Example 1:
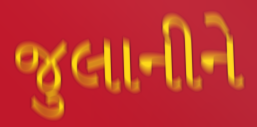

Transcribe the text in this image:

જુલાનીને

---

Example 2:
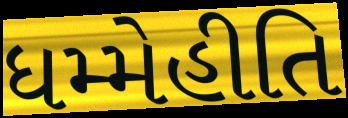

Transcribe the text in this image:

ધમ્મેહીતિ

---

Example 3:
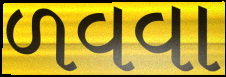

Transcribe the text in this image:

ળવવા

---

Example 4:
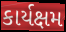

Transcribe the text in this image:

કાર્યક્ષમ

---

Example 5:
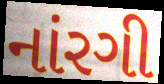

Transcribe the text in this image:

નાંરગી